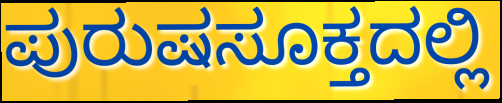
ಪುರುಷಸೂಕ್ತದಲ್ಲಿ